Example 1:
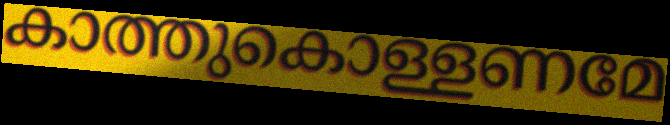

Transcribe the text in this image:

കാത്തുകൊള്ളണമേ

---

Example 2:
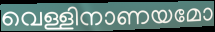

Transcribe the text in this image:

വെള്ളിനാണയമോ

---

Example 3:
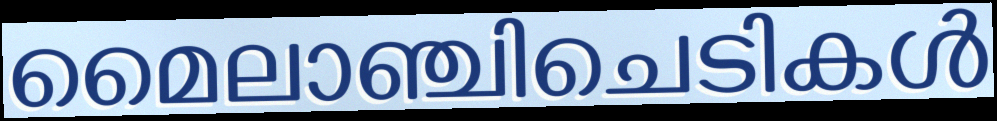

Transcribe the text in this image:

മൈലാഞ്ചിചെടികൾ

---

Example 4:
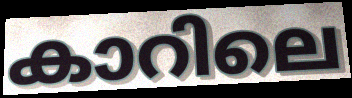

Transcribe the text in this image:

കാറിലെ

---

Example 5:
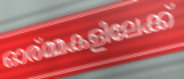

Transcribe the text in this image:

ഓര്മ്മകളിലേക്ക്